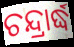
ଚନ୍ଦ୍ରାର୍ଦ୍ଧ